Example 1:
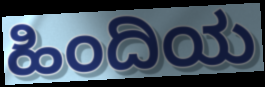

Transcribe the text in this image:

ಹಿಂದಿಯ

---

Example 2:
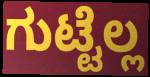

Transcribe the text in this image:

ಗುಟ್ಟೆಲ್ಲ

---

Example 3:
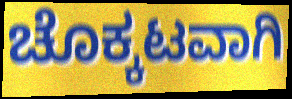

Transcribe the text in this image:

ಚೊಕ್ಕಟವಾಗಿ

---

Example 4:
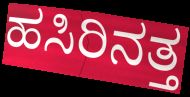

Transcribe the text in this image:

ಹಸಿರಿನತ್ತ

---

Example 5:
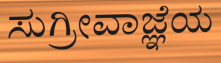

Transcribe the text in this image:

ಸುಗ್ರೀವಾಜ್ಞೆಯ